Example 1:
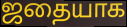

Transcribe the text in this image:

ஜதையாக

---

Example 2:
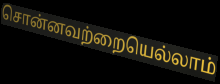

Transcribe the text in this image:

சொன்னவற்றையெல்லாம்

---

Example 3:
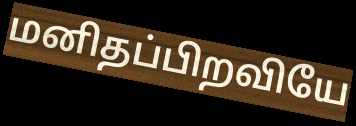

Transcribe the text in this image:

மனிதப்பிறவியே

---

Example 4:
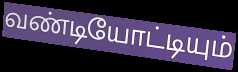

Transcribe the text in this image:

வண்டியோட்டியும்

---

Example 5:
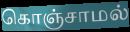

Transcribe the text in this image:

கொஞ்சாமல்